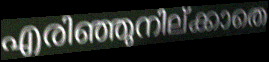
എരിഞ്ഞുനില്ക്കാതെ